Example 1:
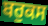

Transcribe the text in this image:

ਬਰੁਕਸ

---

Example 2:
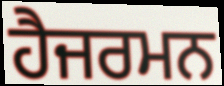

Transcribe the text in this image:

ਹੈਜਰਮਨ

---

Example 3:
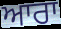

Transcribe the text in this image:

ਆਰਾ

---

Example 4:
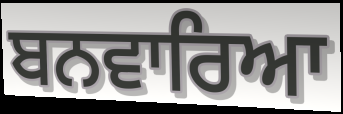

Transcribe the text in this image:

ਬਨਵਾਰਿਆ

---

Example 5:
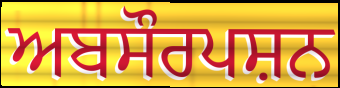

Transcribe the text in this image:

ਅਬਸੌਰਪਸ਼ਨ